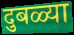
दुबळ्या